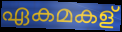
ഏകമകള്